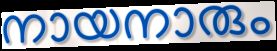
നായനാരും